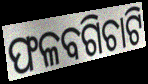
ଫଳବଗିଚାଟି